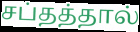
சப்தத்தால்